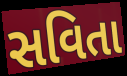
સવિતા